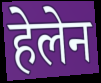
हेलेन